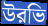
উরভি